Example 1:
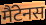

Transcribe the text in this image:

मैंटेनस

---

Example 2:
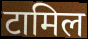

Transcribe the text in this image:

टामिल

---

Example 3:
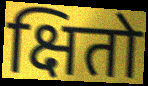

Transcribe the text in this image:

क्षितो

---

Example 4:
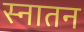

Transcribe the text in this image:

स्नातन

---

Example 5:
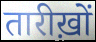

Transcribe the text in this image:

तारीख़ों